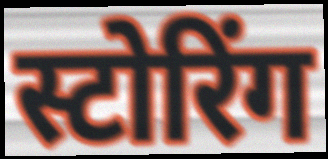
स्टोरिंग